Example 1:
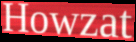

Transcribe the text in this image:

Howzat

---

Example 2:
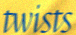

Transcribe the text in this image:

twists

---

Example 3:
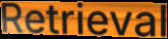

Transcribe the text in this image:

Retrieval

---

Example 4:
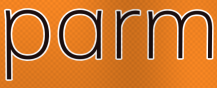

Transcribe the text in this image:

parm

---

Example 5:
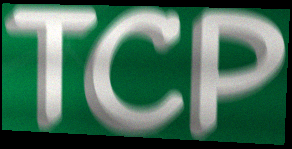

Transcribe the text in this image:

TCP